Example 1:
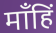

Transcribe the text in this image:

माँहिं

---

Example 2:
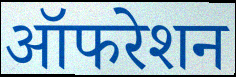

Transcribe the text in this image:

ऑफरेशन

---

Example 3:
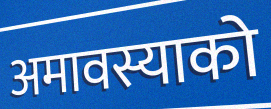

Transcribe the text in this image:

अमावस्याको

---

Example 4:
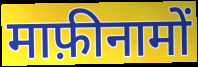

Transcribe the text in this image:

माफ़ीनामों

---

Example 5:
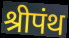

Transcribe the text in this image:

श्रीपंथ